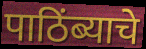
पाठिंब्याचे